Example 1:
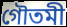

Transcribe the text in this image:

গৌতমী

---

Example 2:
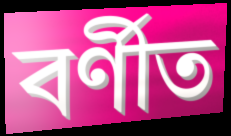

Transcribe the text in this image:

বর্ণীত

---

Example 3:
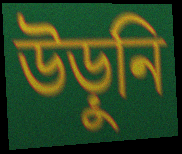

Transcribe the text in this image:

উড়ুনি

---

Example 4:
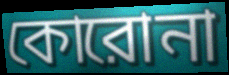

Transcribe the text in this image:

কোরোনা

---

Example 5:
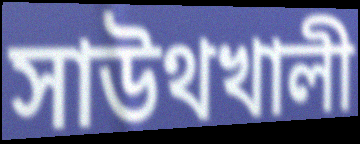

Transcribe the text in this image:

সাউথখালী